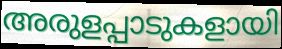
അരുളപ്പാടുകളായി